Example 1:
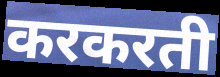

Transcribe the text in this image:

करकरती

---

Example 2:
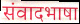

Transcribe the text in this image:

संवादभाषा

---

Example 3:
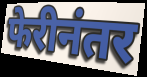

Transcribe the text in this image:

फेरीनंतर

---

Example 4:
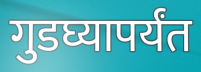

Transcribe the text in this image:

गुडघ्यापर्यंत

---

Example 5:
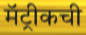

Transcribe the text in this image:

मॅट्रीकची